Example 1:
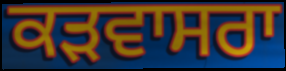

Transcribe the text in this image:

ਕੜਵਾਸਰਾ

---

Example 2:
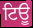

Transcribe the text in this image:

ਟਿਊ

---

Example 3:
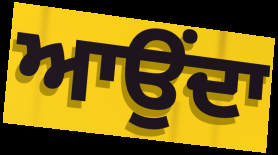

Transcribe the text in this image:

ਆਉੰਦਾ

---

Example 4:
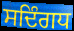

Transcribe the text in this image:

ਸਦਿੰਗਧ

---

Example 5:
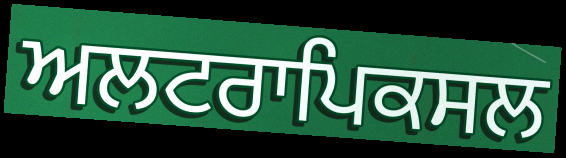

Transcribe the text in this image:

ਅਲਟਰਾਪਿਕਸਲ